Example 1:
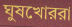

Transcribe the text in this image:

ঘুষখোররা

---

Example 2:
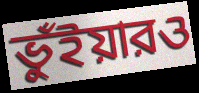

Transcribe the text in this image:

ভুঁইয়ারও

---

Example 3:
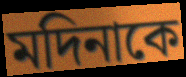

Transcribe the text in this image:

মদিনাকে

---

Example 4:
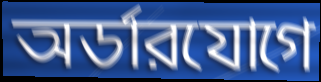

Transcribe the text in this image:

অর্ডারযোগে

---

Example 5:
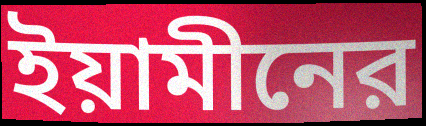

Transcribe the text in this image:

ইয়ামীনের